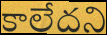
కాలేదని